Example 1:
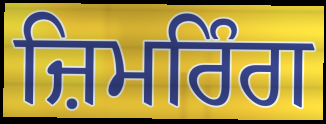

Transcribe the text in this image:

ਜ਼ਿਮਰਿੰਗ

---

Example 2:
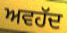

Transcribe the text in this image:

ਅਵਹੱਦ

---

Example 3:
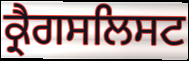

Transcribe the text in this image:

ਕ੍ਰੈਗਸਲਿਸਟ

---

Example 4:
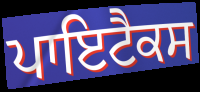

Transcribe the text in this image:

ਪਾਇਟੈਕਸ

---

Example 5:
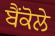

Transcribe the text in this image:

ਬੈਂਕੋਲੇ